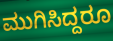
ಮುಗಿಸಿದ್ದರೂ